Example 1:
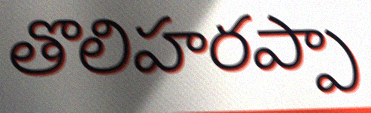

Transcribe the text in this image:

తొలిహరప్పా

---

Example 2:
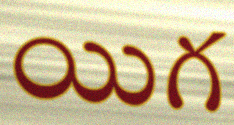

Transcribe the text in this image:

యిగ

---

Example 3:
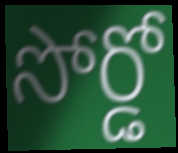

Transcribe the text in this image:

సోర్డో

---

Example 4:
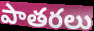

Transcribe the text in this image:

పాతరలు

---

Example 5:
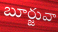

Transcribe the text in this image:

బూర్జువా